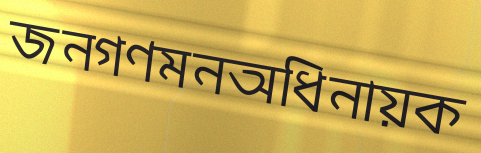
জনগণমনঅধিনায়ক